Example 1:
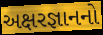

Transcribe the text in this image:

અક્ષરજ્ઞાનનો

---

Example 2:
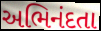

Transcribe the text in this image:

અભિનંદતા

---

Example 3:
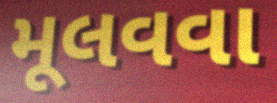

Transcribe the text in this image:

મૂલવવા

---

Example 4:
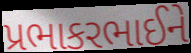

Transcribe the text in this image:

પ્રભાકરભાઈને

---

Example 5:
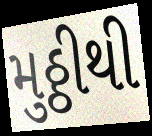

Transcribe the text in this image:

મુઠ્ઠીથી